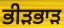
ਭੀੜਭਾੜ